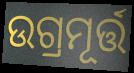
ଉଗ୍ରମୂର୍ତ୍ତ